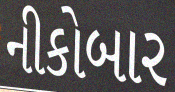
નીકોબાર